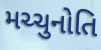
મચ્ચુનોતિ